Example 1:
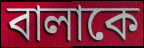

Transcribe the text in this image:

বালাকে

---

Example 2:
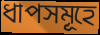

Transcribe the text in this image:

ধাপসমূহে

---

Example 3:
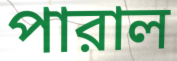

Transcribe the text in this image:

পারাল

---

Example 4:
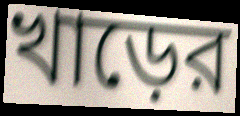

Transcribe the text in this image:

খাড়ের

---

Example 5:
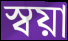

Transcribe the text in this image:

স্বয়া